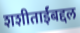
शशीताईंबद्दल